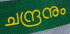
ചന്ദ്രനും